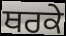
ਥਰਕੇ